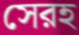
সেরহ